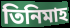
তিনিমাহ